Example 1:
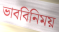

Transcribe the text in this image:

ভাববিনিময়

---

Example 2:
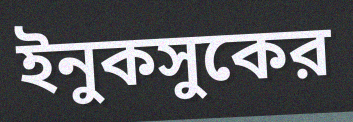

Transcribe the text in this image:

ইনুকসুকের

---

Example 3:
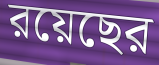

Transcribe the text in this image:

রয়েছের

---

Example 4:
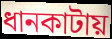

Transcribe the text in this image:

ধানকাটায়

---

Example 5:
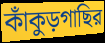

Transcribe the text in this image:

কাঁকুড়গাছির